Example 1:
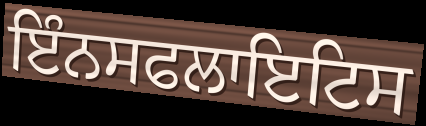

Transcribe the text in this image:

ਇੰਨਸਫਲਾਇਟਿਸ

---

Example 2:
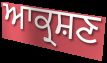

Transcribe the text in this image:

ਆਕ੍ਰਸ਼ਣ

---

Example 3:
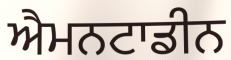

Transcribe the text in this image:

ਐਮਨਟਾਡੀਨ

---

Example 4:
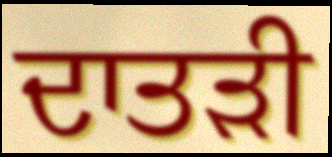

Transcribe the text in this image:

ਦਾਤੜੀ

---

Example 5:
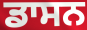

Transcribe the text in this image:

ਡਾਸਨ